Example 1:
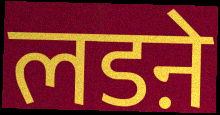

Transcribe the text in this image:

लडऩे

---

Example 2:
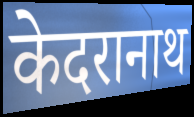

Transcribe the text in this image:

केदरानाथ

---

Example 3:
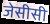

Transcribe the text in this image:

जेसीसी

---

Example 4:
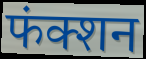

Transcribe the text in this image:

फंक्शन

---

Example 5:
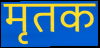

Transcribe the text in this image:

मृतक